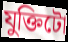
যুক্তিটো